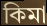
কিমা